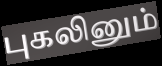
புகலினும்